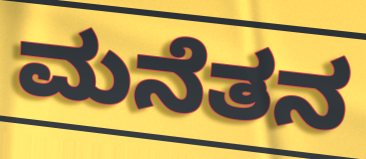
ಮನೆತನ